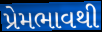
પ્રેમભાવથી